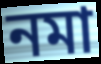
নমা